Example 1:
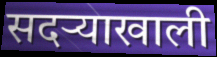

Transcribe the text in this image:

सदऱ्याखाली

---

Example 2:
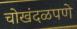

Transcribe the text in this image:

चोखंदळपणे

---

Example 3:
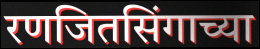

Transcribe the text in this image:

रणजितसिंगाच्या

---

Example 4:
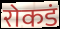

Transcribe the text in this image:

रोकडं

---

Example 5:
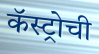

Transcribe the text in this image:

कॅस्ट्रोची